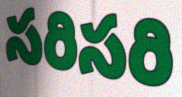
సరిసరి